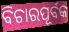
ବିଚାରପୂର୍ବକ